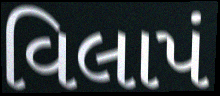
વિલાપં